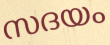
സദയം